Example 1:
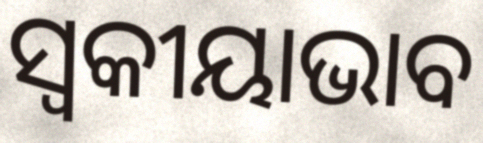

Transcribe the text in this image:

ସ୍ୱକୀୟାଭାବ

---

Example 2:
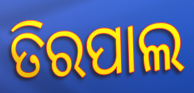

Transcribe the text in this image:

ତିରପାଲ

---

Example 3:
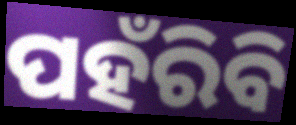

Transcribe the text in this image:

ପହଁରିବି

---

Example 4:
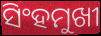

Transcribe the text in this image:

ସିଂହମୁଖୀ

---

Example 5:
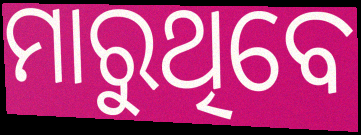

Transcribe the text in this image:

ମାରୁଥିବେ